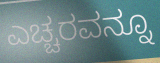
ಎಚ್ಚರವನ್ನೂ